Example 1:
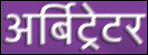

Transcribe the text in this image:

अर्बिट्रेटर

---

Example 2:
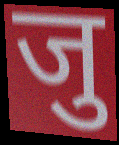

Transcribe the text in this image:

जु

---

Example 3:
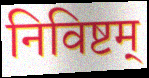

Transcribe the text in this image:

निविष्टम्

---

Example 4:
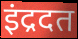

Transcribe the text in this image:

इंद्रदत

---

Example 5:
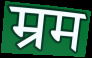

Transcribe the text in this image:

म्रम